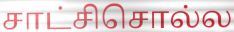
சாட்சிசொல்ல